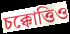
চক্কোত্তিও